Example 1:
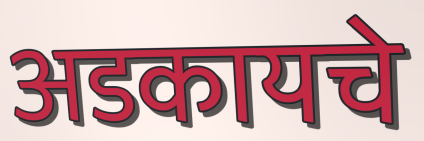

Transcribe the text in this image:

अडकायचे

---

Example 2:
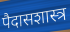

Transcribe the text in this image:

पैदासशास्त्र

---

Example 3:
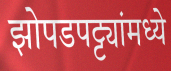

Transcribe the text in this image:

झोपडपट्ट्यांमध्ये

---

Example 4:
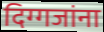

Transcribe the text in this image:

दिग्गजांना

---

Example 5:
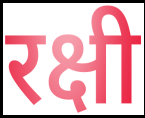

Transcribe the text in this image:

रक्षी